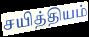
சயித்தியம்